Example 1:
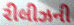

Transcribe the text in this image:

રીલીઝની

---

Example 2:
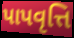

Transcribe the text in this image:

પાપવૃત્તિ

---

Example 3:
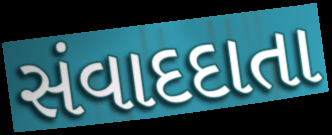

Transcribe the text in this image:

સંવાદદાતા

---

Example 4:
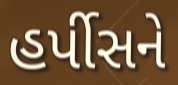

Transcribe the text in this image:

હર્પીસને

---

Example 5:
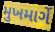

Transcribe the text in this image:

મુખમાર્ગે